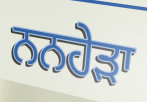
ਨਨਹੇੜਾ